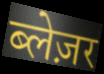
ब्लेज़र